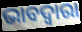
ଭାବଦ୍ଵାରା